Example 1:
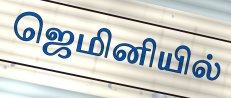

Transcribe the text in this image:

ஜெமினியில்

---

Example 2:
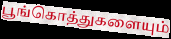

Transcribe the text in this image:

பூங்கொத்துகளையும்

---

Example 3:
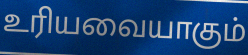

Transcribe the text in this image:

உரியவையாகும்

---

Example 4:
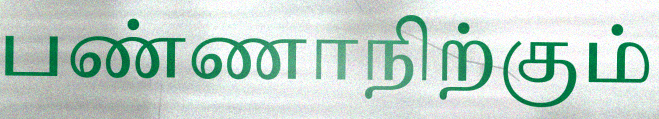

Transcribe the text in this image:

பண்ணாநிற்கும்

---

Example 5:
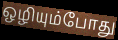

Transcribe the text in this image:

ஒழியும்போது